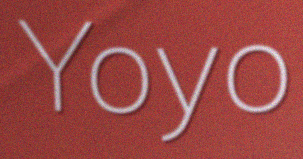
Yoyo